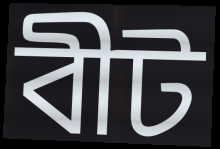
বীট